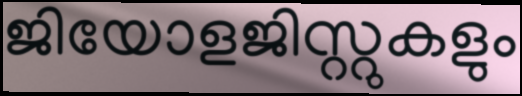
ജിയോളജിസ്റ്റുകളും